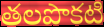
తలపొకటి